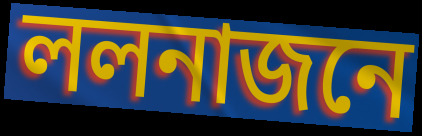
ললনাজনে